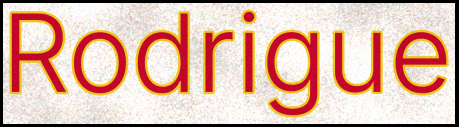
Rodrigue